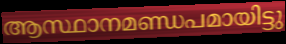
ആസ്ഥാനമണ്ഡപമായിട്ടു